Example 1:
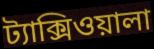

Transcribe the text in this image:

ট্যাক্সিওয়ালা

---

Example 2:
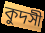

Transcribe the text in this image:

কুদসী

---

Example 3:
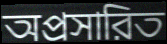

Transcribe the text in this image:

অপ্রসারিত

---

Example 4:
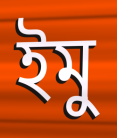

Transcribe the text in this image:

ইমু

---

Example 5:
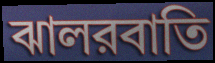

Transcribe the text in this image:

ঝালরবাতি